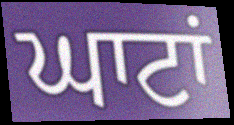
ਘਾਟਾਂ